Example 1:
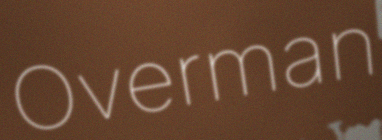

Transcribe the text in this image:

Overman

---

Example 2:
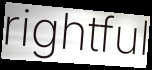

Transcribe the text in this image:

rightful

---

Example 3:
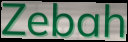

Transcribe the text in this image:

Zebah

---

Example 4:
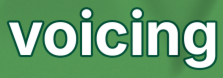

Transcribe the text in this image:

voicing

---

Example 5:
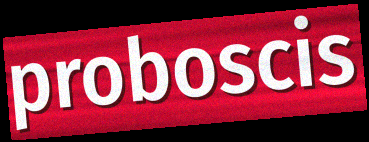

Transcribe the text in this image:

proboscis